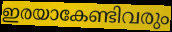
ഇരയാകേണ്ടിവരും